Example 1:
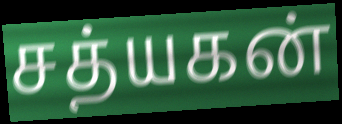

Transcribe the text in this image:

சத்யகன்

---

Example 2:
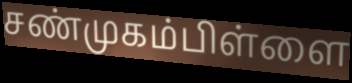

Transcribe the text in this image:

சண்முகம்பிள்ளை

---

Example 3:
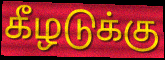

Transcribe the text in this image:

கீழடுக்கு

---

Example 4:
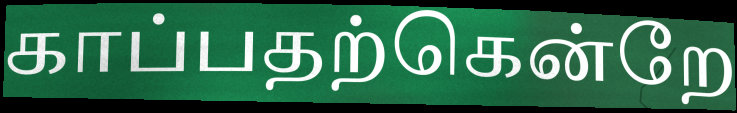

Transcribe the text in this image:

காப்பதற்கென்றே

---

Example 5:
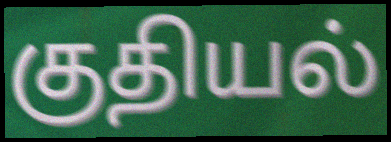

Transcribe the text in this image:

குதியல்